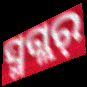
ସ୍ମଗ୍ଲର୍